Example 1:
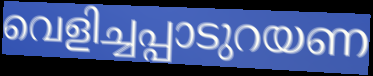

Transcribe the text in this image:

വെളിച്ചപ്പാടുറയണ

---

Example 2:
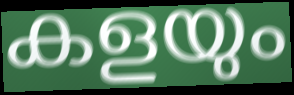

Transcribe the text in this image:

കളയും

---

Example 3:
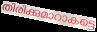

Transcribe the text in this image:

തിരിക്കുമാറാകട്ടെ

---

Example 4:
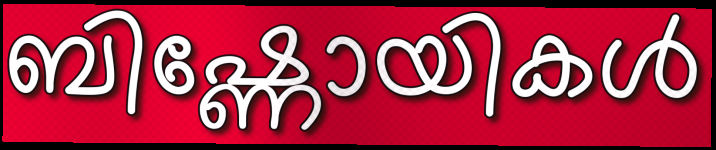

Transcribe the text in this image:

ബിഷ്ണോയികൾ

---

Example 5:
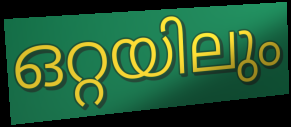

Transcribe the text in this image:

ഒറ്റയിലും